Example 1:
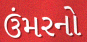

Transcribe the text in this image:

ઉંમરનો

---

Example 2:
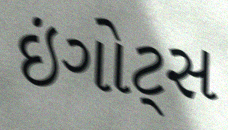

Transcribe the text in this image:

ઇંગોટ્સ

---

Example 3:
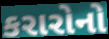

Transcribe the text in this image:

કરારોનો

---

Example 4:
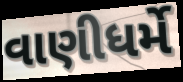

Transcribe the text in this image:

વાણીધર્મે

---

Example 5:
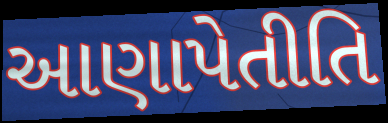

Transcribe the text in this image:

આણાપેતીતિ